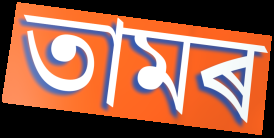
তামৰ